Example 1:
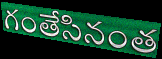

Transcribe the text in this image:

గంతేసినంత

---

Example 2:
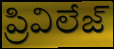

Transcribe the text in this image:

ప్రివిలేజ్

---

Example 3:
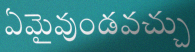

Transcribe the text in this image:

ఏమైవుండవచ్చు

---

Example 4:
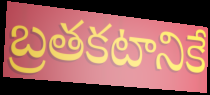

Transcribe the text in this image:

బ్రతకటానికే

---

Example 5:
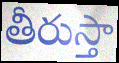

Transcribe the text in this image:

తీరుస్తా